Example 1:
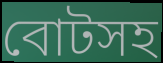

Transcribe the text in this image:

বোটসহ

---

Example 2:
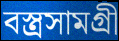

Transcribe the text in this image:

বস্ত্রসামগ্রী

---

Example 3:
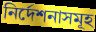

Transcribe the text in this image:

নির্দেশনাসমূহ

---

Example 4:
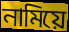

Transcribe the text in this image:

নামিয়ে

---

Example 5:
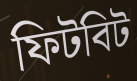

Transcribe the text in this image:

ফিটবিট